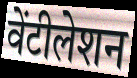
वेंटीलेशन